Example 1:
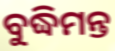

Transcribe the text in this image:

ବୁଦ୍ଧିମନ୍ତ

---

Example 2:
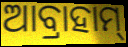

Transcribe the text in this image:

ଆବ୍ରାହାମ୍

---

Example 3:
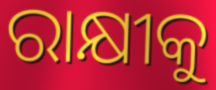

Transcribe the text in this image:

ରାକ୍ଷୀକୁ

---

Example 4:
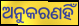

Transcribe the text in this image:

ଅନୁକରଣହିଁ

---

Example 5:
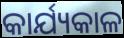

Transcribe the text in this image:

କାର୍ଯ୍ୟକାଳ